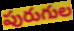
పురుగుల